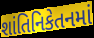
શાંતિનિકેતનમાં